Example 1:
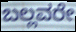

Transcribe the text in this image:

ಬಲ್ಲವರೇ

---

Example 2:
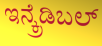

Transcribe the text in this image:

ಇನ್ಕ್ರೆಡಿಬಲ್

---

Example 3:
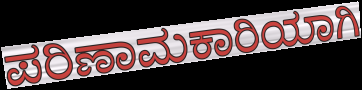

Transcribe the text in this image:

ಪರಿಣಾಮಕಾರಿಯಾಗಿ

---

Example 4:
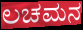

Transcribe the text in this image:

ಲಚಮನ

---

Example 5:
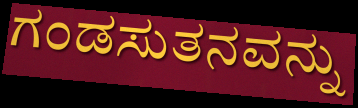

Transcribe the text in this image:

ಗಂಡಸುತನವನ್ನು